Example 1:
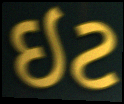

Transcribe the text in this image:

ઇટ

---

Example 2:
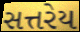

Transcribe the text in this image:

સત્તરેય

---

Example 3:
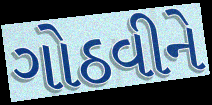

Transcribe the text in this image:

ગોઠવીને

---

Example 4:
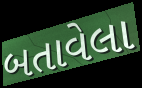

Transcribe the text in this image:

બતાવેલા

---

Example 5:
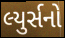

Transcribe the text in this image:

લ્યુર્સનો